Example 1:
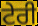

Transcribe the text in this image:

ਟੇਰੀ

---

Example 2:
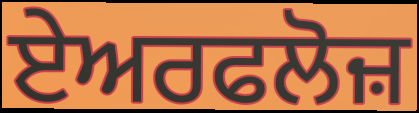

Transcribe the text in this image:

ਏਅਰਫਲੋਜ਼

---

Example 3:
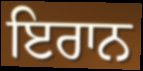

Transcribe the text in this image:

ਇਰਾਨ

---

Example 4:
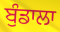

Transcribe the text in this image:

ਬੁੰਡਾਲਾ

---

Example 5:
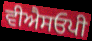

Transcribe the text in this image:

ਵੀਐਸਓਪੀ